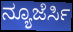
ನ್ಯೂಜೆರ್ಸಿ